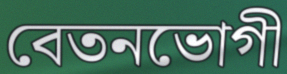
বেতনভোগী